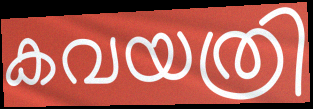
കവയത്രി